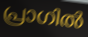
പ്രാഗിൽ